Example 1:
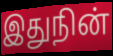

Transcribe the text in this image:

இதுநின்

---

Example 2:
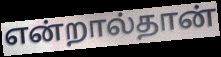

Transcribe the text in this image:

என்றால்தான்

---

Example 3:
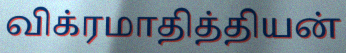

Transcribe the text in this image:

விக்ரமாதித்தியன்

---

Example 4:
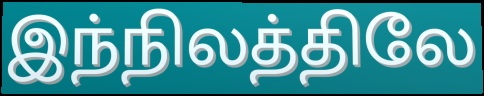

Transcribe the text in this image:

இந்நிலத்திலே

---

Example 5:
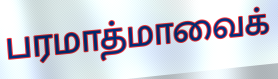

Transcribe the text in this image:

பரமாத்மாவைக்